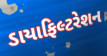
ડાયાફિલ્ટરેશન